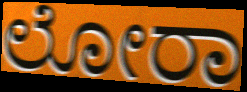
ಲೋರಾ